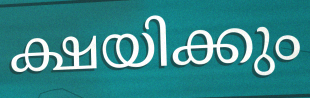
ക്ഷയിക്കും